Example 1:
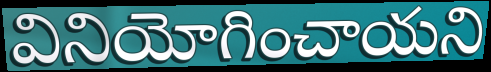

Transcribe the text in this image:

వినియోగించాయని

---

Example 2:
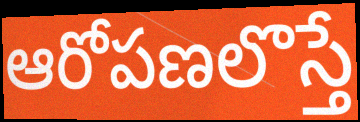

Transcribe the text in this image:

ఆరోపణలొస్తే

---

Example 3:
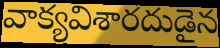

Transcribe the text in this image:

వాక్యవిశారదుడైన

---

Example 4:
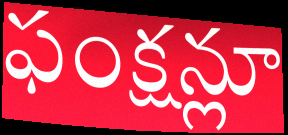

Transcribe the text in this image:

ఫంక్షన్లూ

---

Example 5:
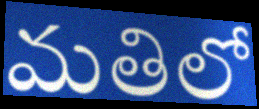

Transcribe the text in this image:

మతిలో